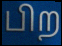
பிற